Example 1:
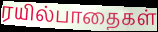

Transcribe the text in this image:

ரயில்பாதைகள்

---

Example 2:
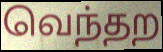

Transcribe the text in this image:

வெந்தற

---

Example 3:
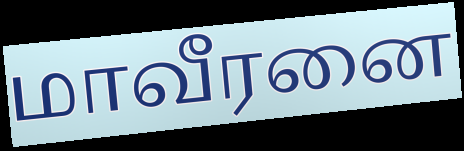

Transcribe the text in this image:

மாவீரனை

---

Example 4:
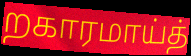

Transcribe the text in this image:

றகாரமாய்த்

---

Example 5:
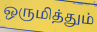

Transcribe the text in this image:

ஒருமித்தும்